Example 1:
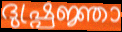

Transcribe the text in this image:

ദുഷ്പ്രജ്ഞാ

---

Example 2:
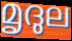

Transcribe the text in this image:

മൃദുല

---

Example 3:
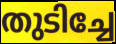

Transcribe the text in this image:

തുടിച്ചേ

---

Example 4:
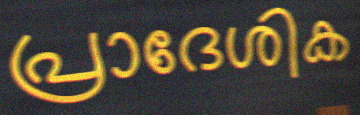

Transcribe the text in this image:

പ്രാദേശിക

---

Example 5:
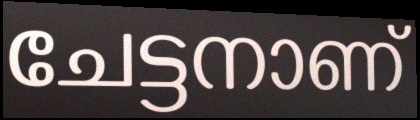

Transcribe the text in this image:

ചേട്ടനാണ്